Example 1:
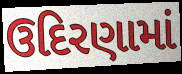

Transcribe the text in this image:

ઉદિરણામાં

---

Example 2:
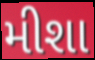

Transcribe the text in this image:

મીશા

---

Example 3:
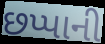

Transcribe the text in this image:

છપ્પાની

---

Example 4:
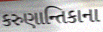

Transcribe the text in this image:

કરુણાન્તિકાના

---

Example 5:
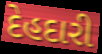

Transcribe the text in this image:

દેહદારી